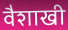
वैशाखी